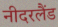
नीदरलैंड